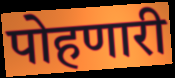
पोहणारी